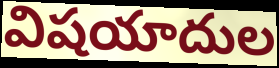
విషయాదుల